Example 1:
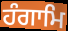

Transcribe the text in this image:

ਹੰਗਾਮਿ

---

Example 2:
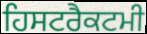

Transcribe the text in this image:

ਹਿਸਟਰੈਕਟਮੀ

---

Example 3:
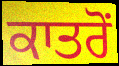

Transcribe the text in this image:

ਕਾਤਰੋੰ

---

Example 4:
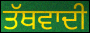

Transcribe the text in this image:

ਤੱਥਵਾਦੀ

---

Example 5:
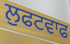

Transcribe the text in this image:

ਲੁਫਟਵਾਫ